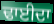
ਢਾਈਦਾ